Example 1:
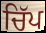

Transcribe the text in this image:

ਚਿੱਪ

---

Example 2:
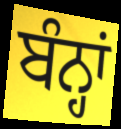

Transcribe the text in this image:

ਬੰਨ੍ਹਾਂ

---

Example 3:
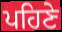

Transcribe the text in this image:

ਪਹਿਣੇ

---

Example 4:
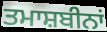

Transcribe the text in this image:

ਤਮਾਸ਼ਬੀਨਾਂ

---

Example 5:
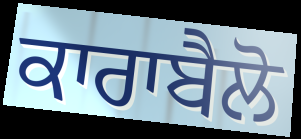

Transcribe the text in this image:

ਕਾਰਾਬੈਲੋ